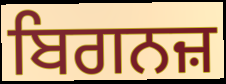
ਬਿਗਨਜ਼